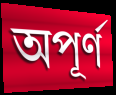
অপূৰ্ণ